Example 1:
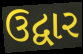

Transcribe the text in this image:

ઉદ્વાર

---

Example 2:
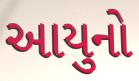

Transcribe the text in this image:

આયુનો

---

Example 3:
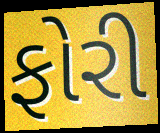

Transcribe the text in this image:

ફોરી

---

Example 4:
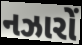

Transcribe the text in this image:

નઝારોં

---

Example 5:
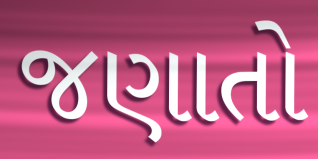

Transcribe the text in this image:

જણાતો